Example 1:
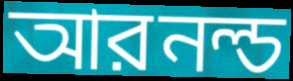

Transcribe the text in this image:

আরনল্ড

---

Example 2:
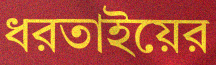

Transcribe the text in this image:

ধরতাইয়ের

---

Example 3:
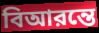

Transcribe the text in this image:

বিআরন্তে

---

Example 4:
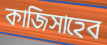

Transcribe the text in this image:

কাজিসাহেব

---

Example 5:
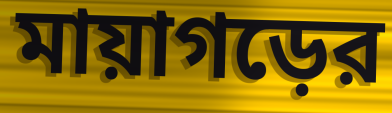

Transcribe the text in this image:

মায়াগড়ের